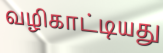
வழிகாட்டியது